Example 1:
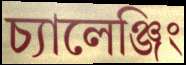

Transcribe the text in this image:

চ্যালেঞ্জিং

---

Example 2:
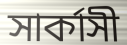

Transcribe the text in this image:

সার্কাসী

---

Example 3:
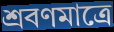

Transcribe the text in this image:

শ্রবণমাত্রে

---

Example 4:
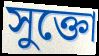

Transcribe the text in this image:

সুক্তো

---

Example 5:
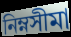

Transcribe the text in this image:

নিম্নসীমা